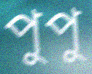
পুপু